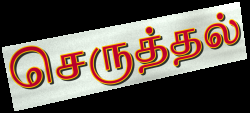
செருத்தல்